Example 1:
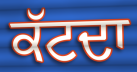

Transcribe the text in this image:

ਕੱਟਦਾ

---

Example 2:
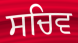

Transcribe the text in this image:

ਸਚਿਵ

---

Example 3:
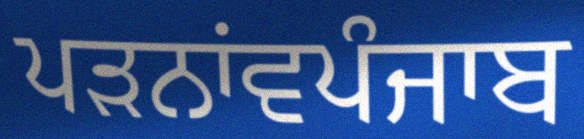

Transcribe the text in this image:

ਪੜਨਾਂਵਪੰਜਾਬ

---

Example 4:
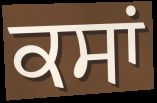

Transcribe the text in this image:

ਕਸਾਂ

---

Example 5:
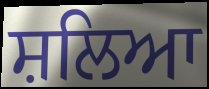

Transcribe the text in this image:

ਸ਼ਲਿਆ